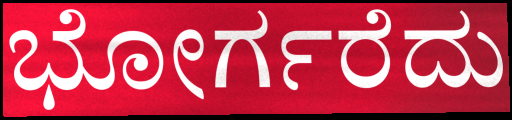
ಭೋರ್ಗರೆದು